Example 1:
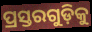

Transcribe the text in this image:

ପ୍ରସ୍ତରଗୁଡ଼ିକୁ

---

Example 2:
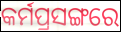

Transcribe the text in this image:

କର୍ମପ୍ରସଙ୍ଗରେ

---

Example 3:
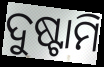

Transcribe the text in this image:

ଦୁଷ୍ଟାମି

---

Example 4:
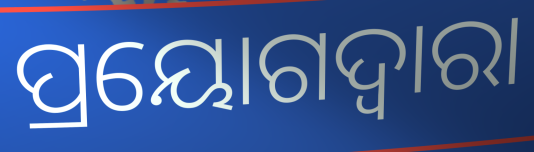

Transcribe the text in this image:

ପ୍ରୟୋଗଦ୍ଵାରା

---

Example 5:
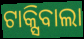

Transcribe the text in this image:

ଟାକ୍ସିବାଲା